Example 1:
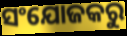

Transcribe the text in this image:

ସଂଯୋଜକରୁ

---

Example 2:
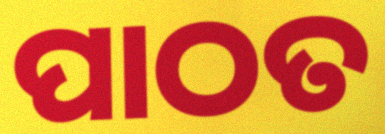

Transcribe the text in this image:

ପାଠତ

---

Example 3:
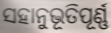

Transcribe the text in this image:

ସହାନୁଭୂତିପୂର୍ଣ୍ଣ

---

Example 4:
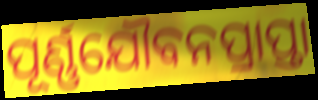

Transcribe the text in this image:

ପୂର୍ଣ୍ଣଯୌବନପ୍ରାପ୍ତା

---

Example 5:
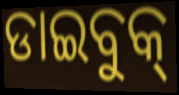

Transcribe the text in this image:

ଡାଇବୁକ୍